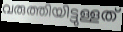
വരുത്തിയിട്ടുള്ളത്